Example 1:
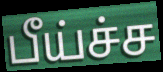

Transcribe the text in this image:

பீய்ச்ச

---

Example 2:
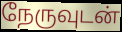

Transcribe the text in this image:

நேருவுடன்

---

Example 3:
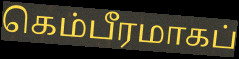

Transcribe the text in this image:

கெம்பீரமாகப்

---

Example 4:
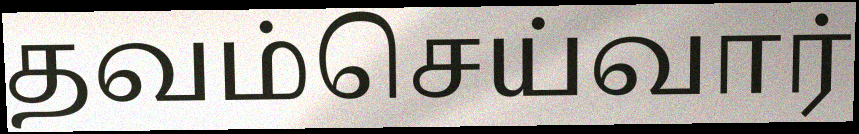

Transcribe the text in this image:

தவம்செய்வார்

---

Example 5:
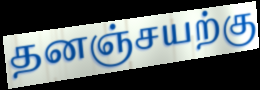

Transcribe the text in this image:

தனஞ்சயற்கு